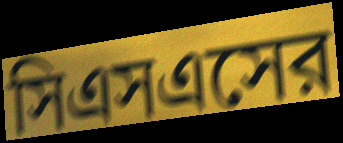
সিএসএসের